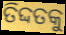
ତିଦ୍ଦତକୁ